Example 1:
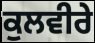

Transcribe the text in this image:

ਕੁਲਵੀਰੇ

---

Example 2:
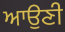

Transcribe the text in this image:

ਆਉਣੀ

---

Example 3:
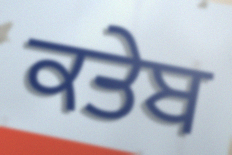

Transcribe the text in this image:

ਕਤੇਬ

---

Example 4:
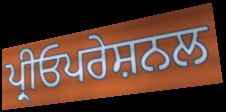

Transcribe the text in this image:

ਪ੍ਰੀਓਪਰੇਸ਼ਨਲ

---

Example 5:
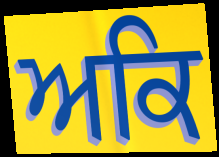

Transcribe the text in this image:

ਅਕਿ